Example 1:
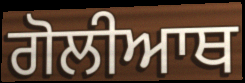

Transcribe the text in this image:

ਗੋਲੀਆਥ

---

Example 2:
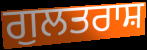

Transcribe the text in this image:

ਗੁਲਤਰਾਸ਼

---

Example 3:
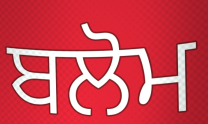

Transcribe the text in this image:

ਬਲੋਮ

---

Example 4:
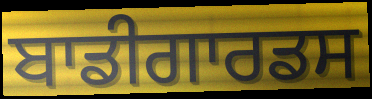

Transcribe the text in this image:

ਬਾਡੀਗਾਰਡਸ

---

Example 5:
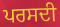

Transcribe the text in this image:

ਪਰਸਦੀ